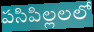
పసిపిల్లలలో